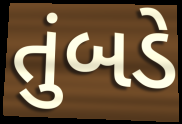
તુંબડે